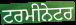
ਟਰਮੀਨੇਟਰ